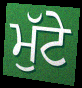
ਮੁੱਟੇ